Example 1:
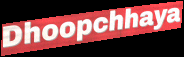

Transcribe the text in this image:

Dhoopchhaya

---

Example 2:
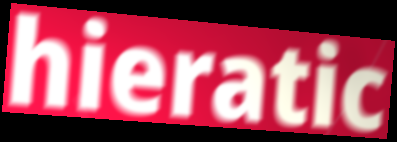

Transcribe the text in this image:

hieratic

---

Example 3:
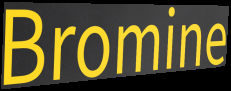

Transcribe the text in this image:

Bromine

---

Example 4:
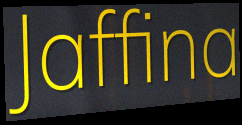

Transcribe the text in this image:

Jaffina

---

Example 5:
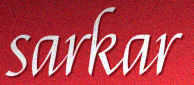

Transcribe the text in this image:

sarkar